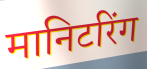
मानिटरिंग